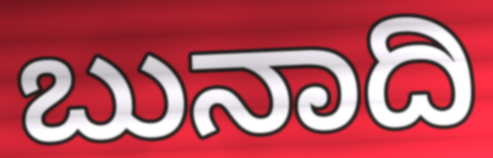
ಬುನಾದಿ